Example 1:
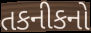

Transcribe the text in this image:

તકનીકનો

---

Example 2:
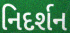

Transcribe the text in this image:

નિદર્શન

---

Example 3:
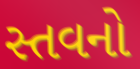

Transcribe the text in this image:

સ્તવનો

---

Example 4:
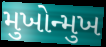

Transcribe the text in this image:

મુખોન્મુખ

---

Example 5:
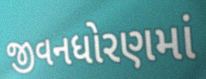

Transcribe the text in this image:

જીવનધોરણમાં